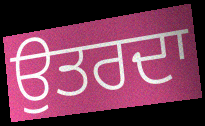
ਉਤਰਦਾ